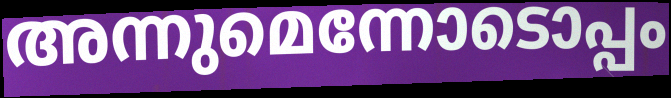
അന്നുമെന്നോടൊപ്പം